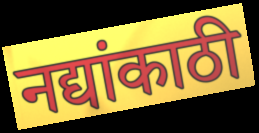
नद्यांकाठी